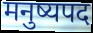
मनुष्यपद